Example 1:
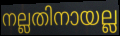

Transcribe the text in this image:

നല്ലതിനായല്ല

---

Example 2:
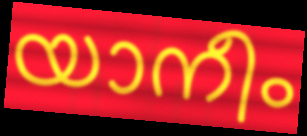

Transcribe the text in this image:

യാനീം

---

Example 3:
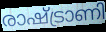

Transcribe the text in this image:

രാഷ്ട്രാണി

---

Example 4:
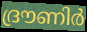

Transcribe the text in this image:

ദ്രൗണിർ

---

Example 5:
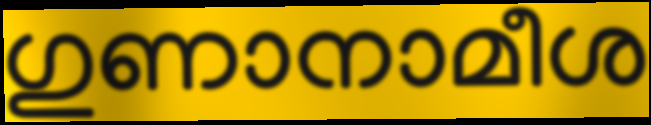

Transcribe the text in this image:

ഗുണാനാമീശ